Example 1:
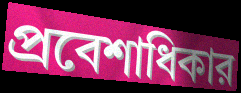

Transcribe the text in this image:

প্রবেশাধিকার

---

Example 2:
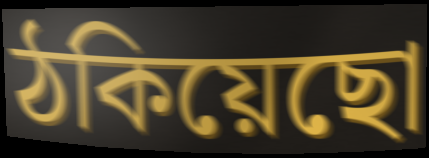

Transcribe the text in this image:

ঠকিয়েছো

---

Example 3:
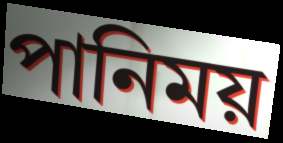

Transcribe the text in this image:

পানিময়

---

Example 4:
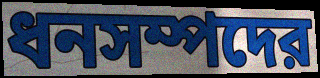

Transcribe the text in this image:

ধনসম্পদের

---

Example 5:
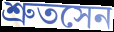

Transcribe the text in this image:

শ্রুতসেন